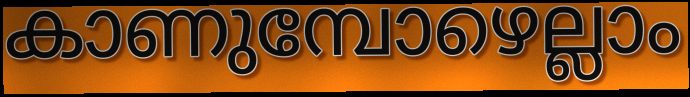
കാണുമ്പോഴെല്ലാം